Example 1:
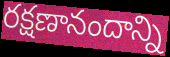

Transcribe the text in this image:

రక్షణానందాన్ని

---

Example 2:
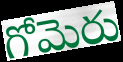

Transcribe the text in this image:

గోమెరు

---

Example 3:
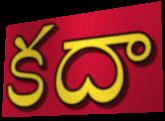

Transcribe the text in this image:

కదా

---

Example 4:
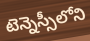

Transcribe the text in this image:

టెన్నెస్సీలోని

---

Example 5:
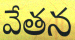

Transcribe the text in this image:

వేతన